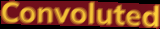
Convoluted